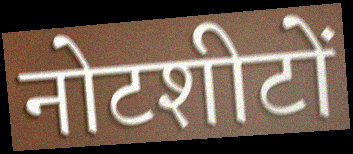
नोटशीटों